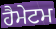
ਹੈਮੇਟਮ